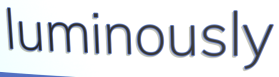
luminously